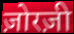
ज़ोरज़ी